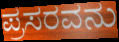
ಪ್ರಸರವನು